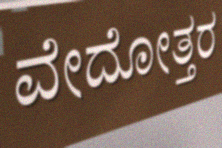
ವೇದೋತ್ತರ